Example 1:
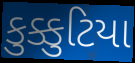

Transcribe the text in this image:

કુક્કુટિયા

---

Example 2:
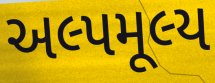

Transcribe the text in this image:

અલ્પમૂલ્ય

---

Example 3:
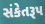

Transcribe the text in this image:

સંકેતરૂપ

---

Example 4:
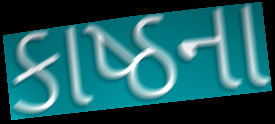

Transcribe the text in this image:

કાષ્ઠના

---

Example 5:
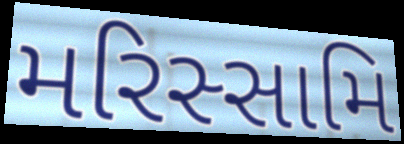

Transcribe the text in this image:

મરિસ્સામિ